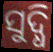
ସୁଦ୍ଧି